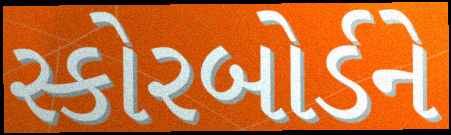
સ્કોરબોર્ડને